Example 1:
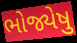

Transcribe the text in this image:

ભોજ્યેષુ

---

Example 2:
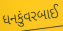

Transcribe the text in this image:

ધનકુંવરબાઈ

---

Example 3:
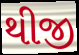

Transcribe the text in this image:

થીજી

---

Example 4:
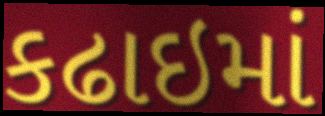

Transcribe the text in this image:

કઢાઇમાં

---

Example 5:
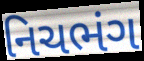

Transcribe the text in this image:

નિચભંગ